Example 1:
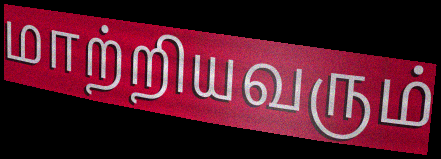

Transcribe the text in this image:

மாற்றியவரும்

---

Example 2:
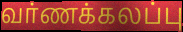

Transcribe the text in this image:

வர்ணக்கலப்பு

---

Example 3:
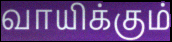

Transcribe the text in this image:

வாயிக்கும்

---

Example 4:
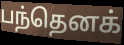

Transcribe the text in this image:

பந்தெனக்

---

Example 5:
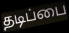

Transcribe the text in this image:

தடிப்பை